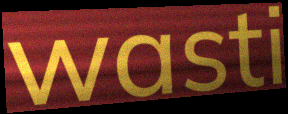
wasti